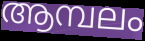
ആമ്പലം